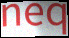
neq